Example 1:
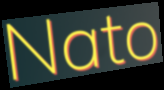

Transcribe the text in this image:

Nato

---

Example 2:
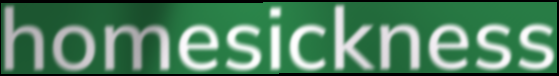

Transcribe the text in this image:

homesickness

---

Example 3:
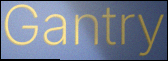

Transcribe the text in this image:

Gantry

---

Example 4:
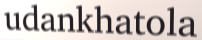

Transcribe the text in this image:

udankhatola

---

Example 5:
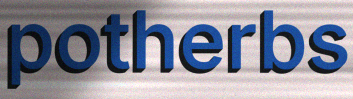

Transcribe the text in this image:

potherbs